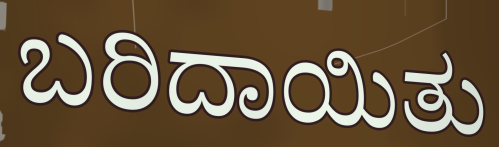
ಬರಿದಾಯಿತು